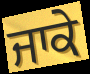
ਜਾਕੇ